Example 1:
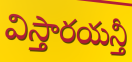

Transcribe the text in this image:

విస్తారయన్తీ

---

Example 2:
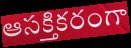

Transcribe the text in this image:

ఆసక్తికరంగా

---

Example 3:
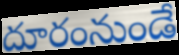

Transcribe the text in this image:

దూరంనుండే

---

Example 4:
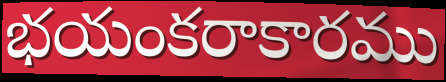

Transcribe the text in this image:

భయంకరాకారము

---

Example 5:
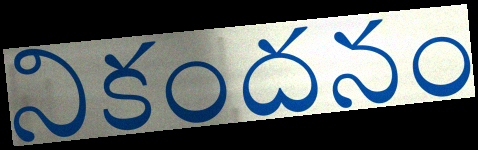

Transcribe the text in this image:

నికందనం